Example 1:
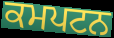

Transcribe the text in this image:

ਕਮਪਟਨ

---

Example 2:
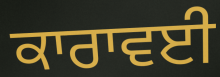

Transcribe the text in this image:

ਕਾਰਾਵਈ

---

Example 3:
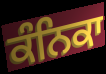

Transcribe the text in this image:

ਕੰਨਿਕਾ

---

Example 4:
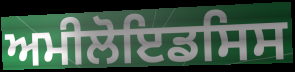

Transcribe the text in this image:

ਅਮੀਲੋਇਡਸਿਸ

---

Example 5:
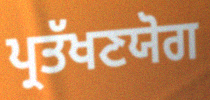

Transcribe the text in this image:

ਪ੍ਰਤੱਖਣਯੋਗ